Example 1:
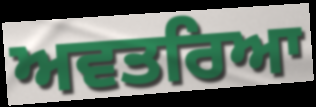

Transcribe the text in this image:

ਅਵਤਰਿਆ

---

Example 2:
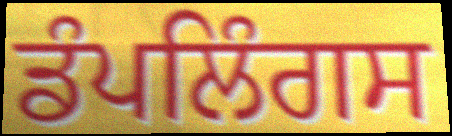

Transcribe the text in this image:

ਡੰਪਲਿੰਗਸ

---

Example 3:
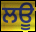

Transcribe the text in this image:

ਲਊ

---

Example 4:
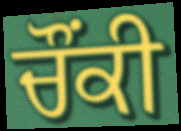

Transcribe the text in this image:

ਚੌਂਕੀ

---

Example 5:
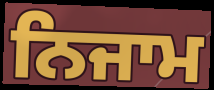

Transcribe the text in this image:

ਨਿਜਾਮ